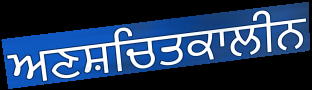
ਅਣਸ਼ਚਿਤਕਾਲੀਨ